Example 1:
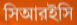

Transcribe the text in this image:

সিআরইসি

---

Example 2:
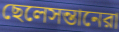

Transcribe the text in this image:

ছেলেসন্তানেরা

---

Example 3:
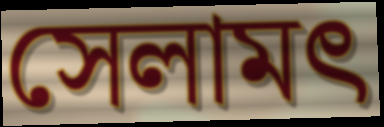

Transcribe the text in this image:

সেলামৎ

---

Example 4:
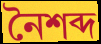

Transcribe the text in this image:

নৈশব্দ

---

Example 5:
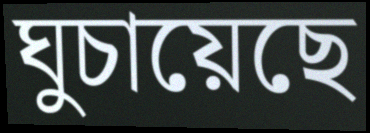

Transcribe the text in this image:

ঘুচায়েছে